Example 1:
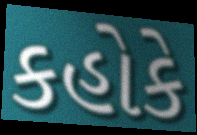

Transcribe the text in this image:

કહોકે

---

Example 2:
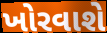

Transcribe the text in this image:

ખોરવાશે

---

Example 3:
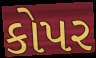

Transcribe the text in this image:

કોપર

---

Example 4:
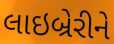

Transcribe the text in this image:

લાઇબ્રેરીને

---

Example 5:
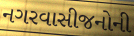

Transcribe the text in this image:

નગરવાસીજનોની